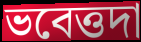
ভবেত্তদা